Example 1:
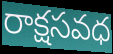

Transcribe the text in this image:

రాక్షసవధ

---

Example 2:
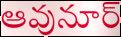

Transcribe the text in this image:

ఆవునూర్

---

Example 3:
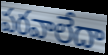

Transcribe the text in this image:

పరవాలేదా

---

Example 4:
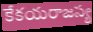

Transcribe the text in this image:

కేకయరాజస్య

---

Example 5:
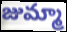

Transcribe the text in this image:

జుమ్మా